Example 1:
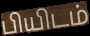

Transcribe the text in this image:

பியிடம்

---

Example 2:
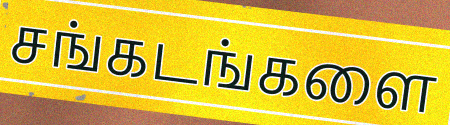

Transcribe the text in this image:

சங்கடங்களை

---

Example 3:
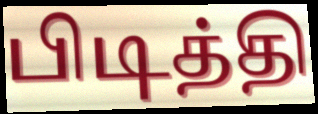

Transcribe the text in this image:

பிடித்தி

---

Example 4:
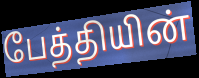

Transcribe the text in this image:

பேத்தியின்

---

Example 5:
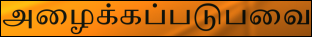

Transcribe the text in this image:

அழைக்கப்படுபவை